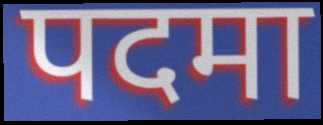
पदमा